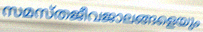
സമസ്തജീവജാലങ്ങളെയും